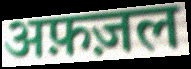
अफ़ज़ल